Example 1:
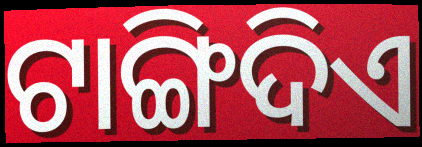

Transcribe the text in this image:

ଟାଙ୍ଗିଦିଏ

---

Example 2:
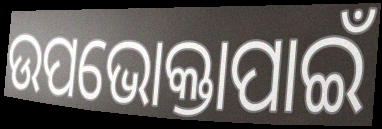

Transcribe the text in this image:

ଉପଭୋକ୍ତାପାଇଁ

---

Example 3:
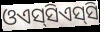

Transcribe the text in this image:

ଓଏସ୍‌ସିଏସ୍‌ସି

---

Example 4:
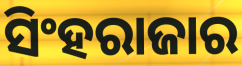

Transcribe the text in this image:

ସିଂହରାଜାର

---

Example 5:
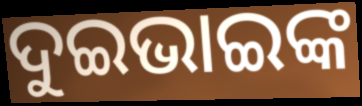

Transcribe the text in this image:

ଦୁଇଭାଇଙ୍କ